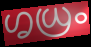
ഗൃധ്രം